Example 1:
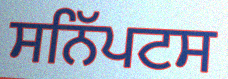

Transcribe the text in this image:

ਸਨਿੱਪਟਸ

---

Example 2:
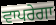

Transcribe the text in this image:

ਵਾਪਰੇਗਾ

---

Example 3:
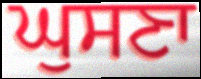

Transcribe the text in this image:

ਘੁਸਣਾ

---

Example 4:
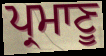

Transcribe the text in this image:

ਪ੍ਰਮਾਣੂ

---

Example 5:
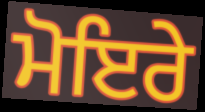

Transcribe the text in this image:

ਮੋਇਰੇ